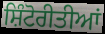
ਸ਼ਿੰਟੋਰੀਤੀਆਂ